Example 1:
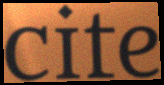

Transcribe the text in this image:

cite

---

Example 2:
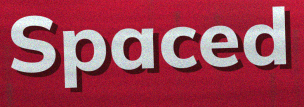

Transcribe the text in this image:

Spaced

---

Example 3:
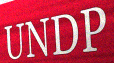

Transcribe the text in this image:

UNDP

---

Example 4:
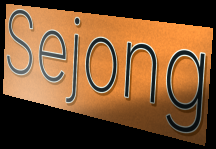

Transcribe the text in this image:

Sejong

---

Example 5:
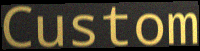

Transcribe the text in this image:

Custom